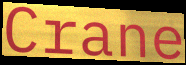
Crane